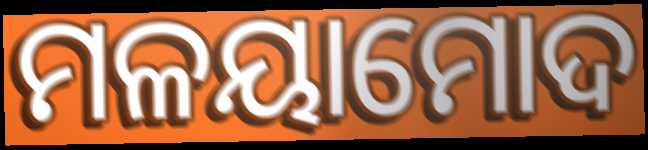
ମଳୟାମୋଦ